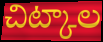
చిట్కాల